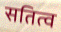
सतित्व